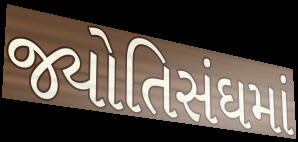
જ્યોતિસંઘમાં